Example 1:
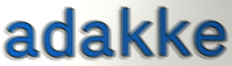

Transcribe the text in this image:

adakke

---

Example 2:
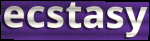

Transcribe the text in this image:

ecstasy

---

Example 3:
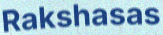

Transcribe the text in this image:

Rakshasas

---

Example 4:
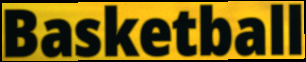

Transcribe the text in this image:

Basketball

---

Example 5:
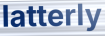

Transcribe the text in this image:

latterly